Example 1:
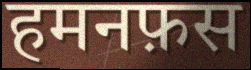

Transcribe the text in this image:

हमनफ़स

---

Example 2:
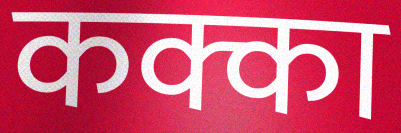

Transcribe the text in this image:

कक्का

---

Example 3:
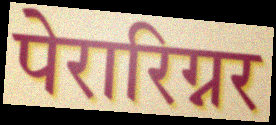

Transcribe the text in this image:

पेरारिग्नर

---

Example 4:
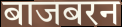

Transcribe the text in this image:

बाजबरन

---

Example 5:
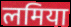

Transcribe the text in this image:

लमिया